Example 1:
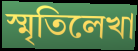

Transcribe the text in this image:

স্মৃতিলেখা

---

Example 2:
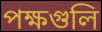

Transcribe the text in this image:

পক্ষগুলি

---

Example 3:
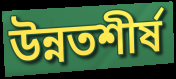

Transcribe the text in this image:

উন্নতশীর্ষ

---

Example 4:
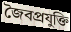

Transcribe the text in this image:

জৈবপ্রযুক্তি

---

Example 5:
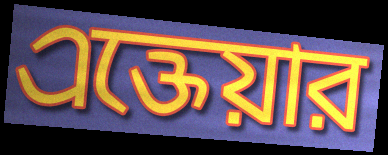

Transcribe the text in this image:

এক্তেয়ার